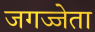
जगज्जेता